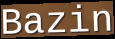
Bazin